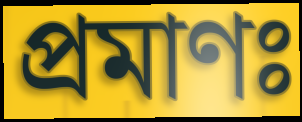
প্রমাণঃ